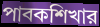
পাবকশিখার